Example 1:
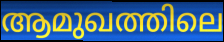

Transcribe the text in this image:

ആമുഖത്തിലെ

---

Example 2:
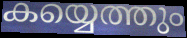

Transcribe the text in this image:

കയ്യെത്തും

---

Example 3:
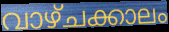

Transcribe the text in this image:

വാഴ്ചക്കാലം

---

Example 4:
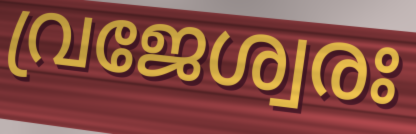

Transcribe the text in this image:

വ്രജേശ്വരഃ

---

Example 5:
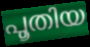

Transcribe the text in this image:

പൂതിയ